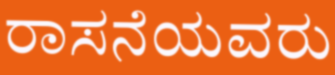
ರಾಸನೆಯವರು